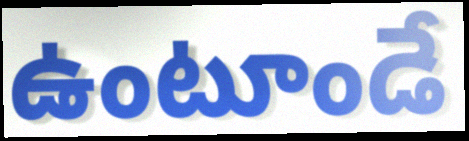
ఉంటూండే